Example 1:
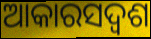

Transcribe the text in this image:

ଆକାରସଦ୍ୱଶ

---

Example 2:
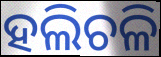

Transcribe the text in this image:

ହଲିଚଳି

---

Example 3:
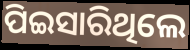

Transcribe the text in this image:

ପିଇସାରିଥିଲେ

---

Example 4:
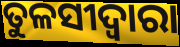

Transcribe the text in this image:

ତୁଳସୀଦ୍ବାରା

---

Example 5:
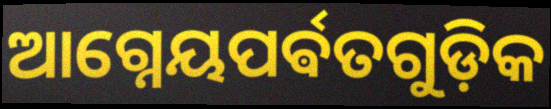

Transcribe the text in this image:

ଆଗ୍ନେୟପର୍ଵତଗୁଡ଼ିକ